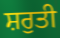
ਸ਼ਰੁਤੀ